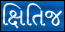
ક્ષિતિજ